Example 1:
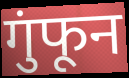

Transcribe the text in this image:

गुंफून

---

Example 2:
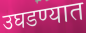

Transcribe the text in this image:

उघडण्यात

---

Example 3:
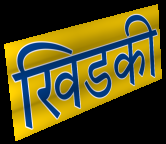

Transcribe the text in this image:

खिडकी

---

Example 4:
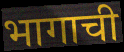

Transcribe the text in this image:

भागाची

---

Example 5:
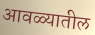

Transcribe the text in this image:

आवळ्यातील